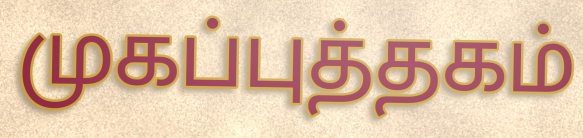
முகப்புத்தகம்